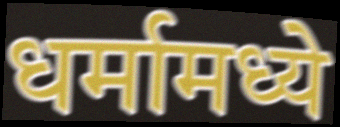
धर्मामध्ये